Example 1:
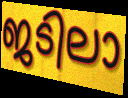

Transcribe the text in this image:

ജടിലാ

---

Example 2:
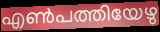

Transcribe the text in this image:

എൺപത്തിയേഴു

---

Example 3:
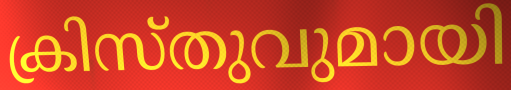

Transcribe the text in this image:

ക്രിസ്തുവുമായി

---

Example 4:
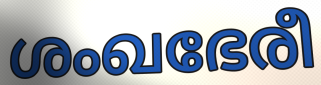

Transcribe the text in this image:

ശംഖഭേരീ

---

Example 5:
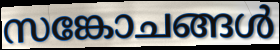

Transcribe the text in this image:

സങ്കോചങ്ങൾ